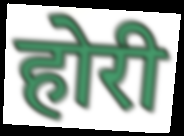
होरी